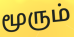
மூரும்